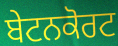
ਬੇਟਨਕੋਰਟ